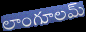
లాంగూలమ్